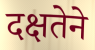
दक्षतेने